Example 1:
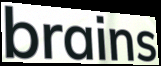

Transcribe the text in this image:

brains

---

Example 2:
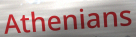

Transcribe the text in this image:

Athenians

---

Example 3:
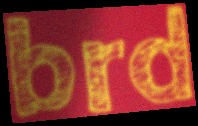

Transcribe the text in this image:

brd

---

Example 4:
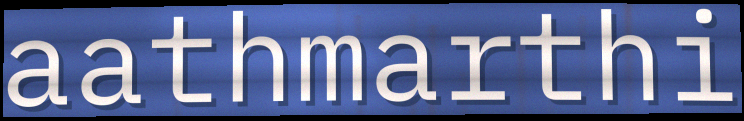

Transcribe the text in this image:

aathmarthi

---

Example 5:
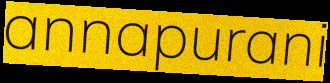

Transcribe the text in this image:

annapurani